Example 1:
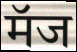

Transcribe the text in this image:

मॅज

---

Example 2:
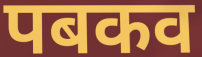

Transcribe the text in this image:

पबकव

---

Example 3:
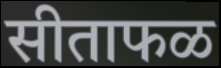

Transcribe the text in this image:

सीताफळ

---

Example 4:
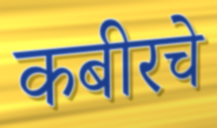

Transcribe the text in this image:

कबीरचे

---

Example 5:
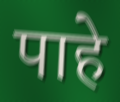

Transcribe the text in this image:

पाहे